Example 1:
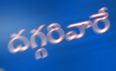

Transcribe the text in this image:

దగ్గరివారే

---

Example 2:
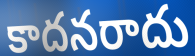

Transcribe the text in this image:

కాదనరాదు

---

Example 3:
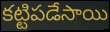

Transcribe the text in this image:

కట్టిపడేసాయి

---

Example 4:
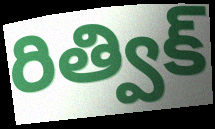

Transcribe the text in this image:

రిత్విక్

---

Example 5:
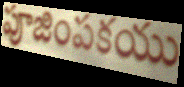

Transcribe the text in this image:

పూజింపకయు